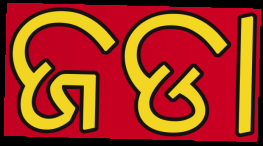
ଜଡା